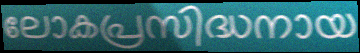
ലോകപ്രസിദ്ധനായ